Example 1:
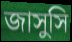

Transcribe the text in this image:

জাসুসি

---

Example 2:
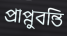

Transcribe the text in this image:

প্রাপ্নুবন্তি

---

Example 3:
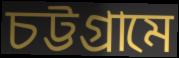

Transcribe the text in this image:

চট্টগ্রামে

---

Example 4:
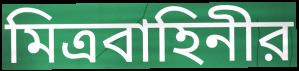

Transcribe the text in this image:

মিত্রবাহিনীর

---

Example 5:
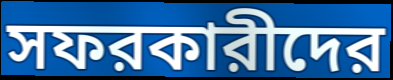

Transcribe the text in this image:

সফরকারীদের